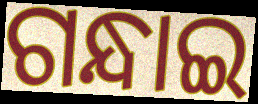
ଗନ୍ଧାଇ